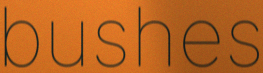
bushes